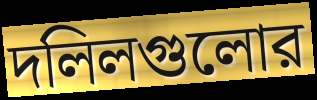
দলিলগুলোর